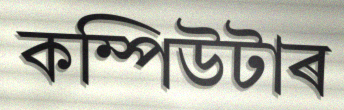
কম্পিউটাৰ